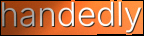
handedly